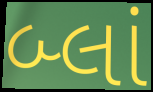
બ્લાં